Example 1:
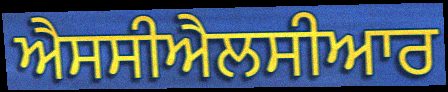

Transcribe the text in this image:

ਐਸਸੀਐਲਸੀਆਰ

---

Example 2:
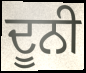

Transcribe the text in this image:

ਦੂਨੀ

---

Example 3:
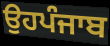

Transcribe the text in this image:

ਉਹਪੰਜਾਬ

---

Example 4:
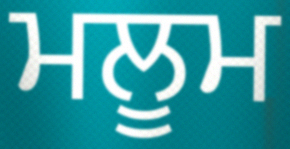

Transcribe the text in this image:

ਮਲੂਮ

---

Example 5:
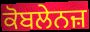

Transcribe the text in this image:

ਕੋਬਲੇਨਜ਼